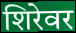
शिरेवर